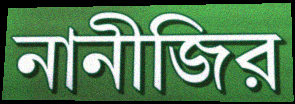
নানীজির